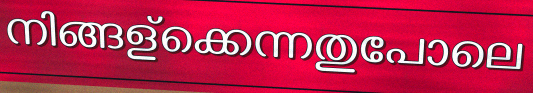
നിങ്ങള്ക്കെന്നതുപോലെ